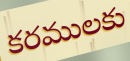
కరములకు